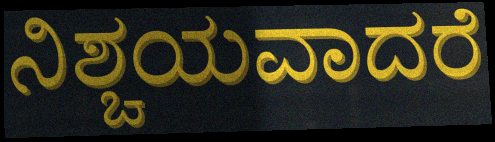
ನಿಶ್ಚಯವಾದರೆ